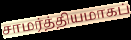
சாமர்த்தியமாகப்